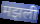
मझली